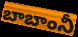
బాబాంనీ